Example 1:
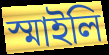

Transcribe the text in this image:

স্মাইলি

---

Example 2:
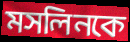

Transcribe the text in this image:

মসলিনকে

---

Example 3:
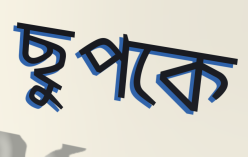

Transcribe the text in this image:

ছুপকে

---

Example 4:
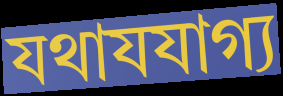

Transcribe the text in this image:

যথাযযাগ্য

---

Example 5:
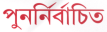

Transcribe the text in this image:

পুনর্নির্বাচিত